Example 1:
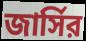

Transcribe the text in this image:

জার্সির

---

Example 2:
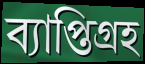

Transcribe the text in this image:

ব্যাপ্তিগ্রহ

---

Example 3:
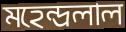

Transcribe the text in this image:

মহেন্দ্রলাল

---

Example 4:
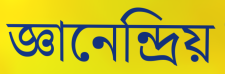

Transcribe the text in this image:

জ্ঞানেন্দ্রিয়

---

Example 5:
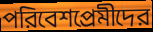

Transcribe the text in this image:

পরিবেশপ্রেমীদের